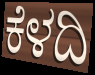
ಕೆಳದಿ